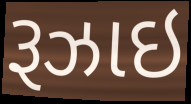
રૂઝાઇ